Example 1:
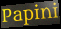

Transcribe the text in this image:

Papini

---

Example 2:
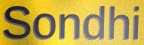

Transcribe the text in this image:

Sondhi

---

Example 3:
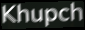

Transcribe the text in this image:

Khupch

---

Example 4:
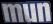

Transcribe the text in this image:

mun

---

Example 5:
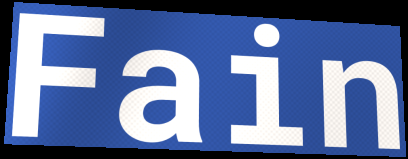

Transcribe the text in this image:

Fain